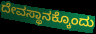
ದೇವಸ್ಥಾನಕ್ಕೊಂದು